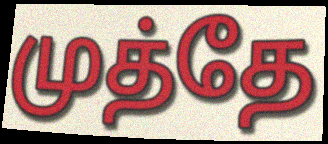
முத்தே